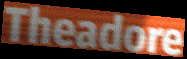
Theadore